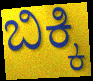
ಬಿಕ್ಕಿ